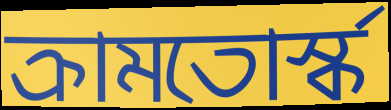
ক্রামতোর্স্ক